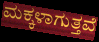
ಮಕ್ಕಳಾಗುತ್ತವೆ